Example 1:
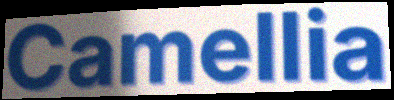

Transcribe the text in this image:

Camellia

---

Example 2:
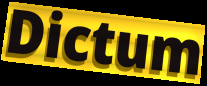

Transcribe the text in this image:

Dictum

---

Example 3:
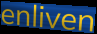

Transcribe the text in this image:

enliven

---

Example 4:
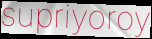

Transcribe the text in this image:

supriyoroy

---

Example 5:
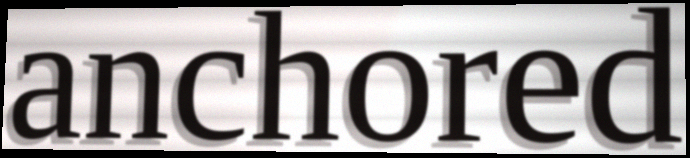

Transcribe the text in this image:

anchored